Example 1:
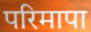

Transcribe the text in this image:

परिमापा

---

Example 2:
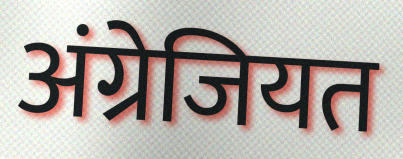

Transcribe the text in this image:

अंग्रेजियत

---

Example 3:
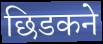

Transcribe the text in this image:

छिडकने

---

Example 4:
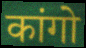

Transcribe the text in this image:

कांगो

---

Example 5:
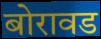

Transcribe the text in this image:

बोरावड